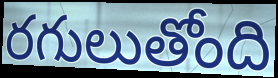
రగులుతోంది